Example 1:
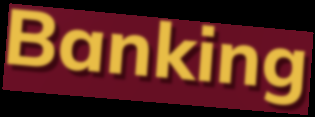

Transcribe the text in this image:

Banking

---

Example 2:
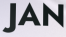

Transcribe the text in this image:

JAN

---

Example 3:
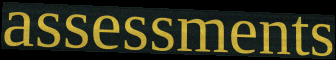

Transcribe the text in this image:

assessments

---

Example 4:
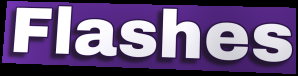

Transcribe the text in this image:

Flashes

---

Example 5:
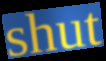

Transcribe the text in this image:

shut